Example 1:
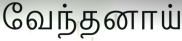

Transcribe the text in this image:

வேந்தனாய்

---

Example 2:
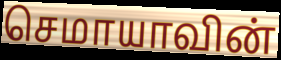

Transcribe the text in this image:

செமாயாவின்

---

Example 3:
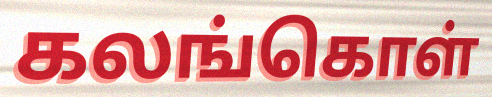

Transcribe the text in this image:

கலங்கொள்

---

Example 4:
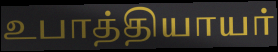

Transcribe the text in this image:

உபாத்தியாயர்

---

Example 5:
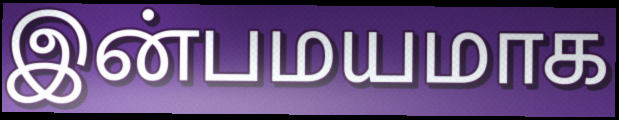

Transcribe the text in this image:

இன்பமயமாக